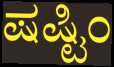
ಷಷ್ಟಿಂ